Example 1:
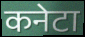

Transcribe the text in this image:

कनेटा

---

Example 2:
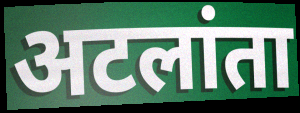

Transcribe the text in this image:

अटलांता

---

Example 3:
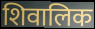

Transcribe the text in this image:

शिवालिक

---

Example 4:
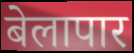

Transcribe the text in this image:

बेलापार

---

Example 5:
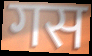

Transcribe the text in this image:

गस